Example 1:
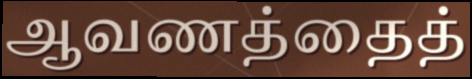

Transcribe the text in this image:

ஆவணத்தைத்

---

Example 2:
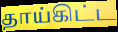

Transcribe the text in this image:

தாய்கிட்ட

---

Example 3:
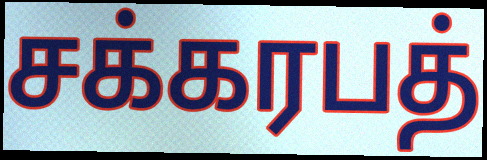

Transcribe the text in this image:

சக்கரபத்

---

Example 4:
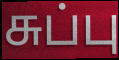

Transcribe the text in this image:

சுப்பு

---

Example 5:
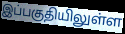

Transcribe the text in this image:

இப்பகுதியிலுள்ள